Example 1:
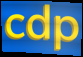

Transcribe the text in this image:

cdp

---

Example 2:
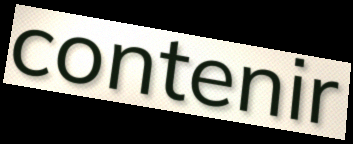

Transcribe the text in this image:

contenir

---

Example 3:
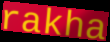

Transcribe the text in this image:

rakha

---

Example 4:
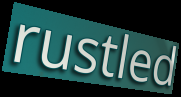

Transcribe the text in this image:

rustled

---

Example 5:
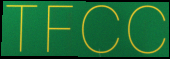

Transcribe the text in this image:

TFCC